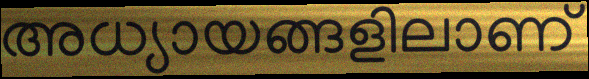
അധ്യായങ്ങളിലാണ്